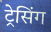
ट्रेसिंग